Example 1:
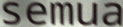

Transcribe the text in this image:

semua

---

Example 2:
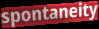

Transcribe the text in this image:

spontaneity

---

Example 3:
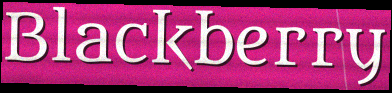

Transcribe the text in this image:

Blackberry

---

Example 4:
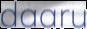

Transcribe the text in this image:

daaru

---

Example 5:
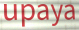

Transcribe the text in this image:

upaya